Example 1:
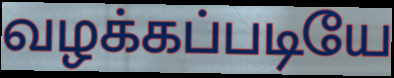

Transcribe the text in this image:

வழக்கப்படியே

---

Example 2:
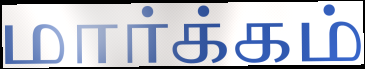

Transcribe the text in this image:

மார்க்கம்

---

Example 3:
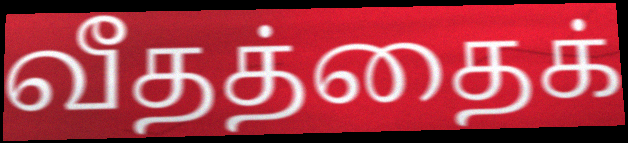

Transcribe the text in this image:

வீதத்தைக்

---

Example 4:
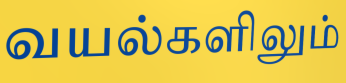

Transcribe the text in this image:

வயல்களிலும்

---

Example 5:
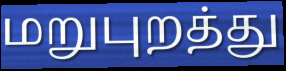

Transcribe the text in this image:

மறுபுறத்து